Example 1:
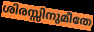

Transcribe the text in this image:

ശിരസ്സിനുമീതേ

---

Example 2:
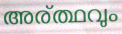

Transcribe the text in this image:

അര്ത്ഥവും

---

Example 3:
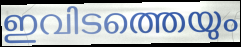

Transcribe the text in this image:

ഇവിടത്തെയും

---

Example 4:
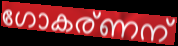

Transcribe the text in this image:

ഗോകര്ണന്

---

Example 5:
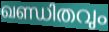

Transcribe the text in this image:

ഖണ്ഡിതവും